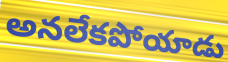
అనలేకపోయాడు